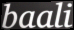
baali